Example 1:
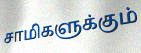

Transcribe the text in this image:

சாமிகளுக்கும்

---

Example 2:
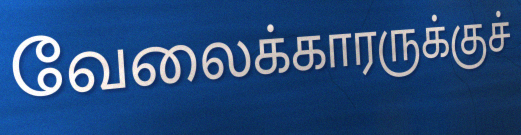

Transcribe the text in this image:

வேலைக்காரருக்குச்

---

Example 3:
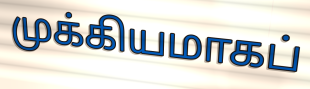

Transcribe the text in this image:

முக்கியமாகப்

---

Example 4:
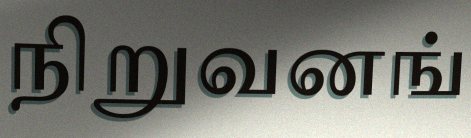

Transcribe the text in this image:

நிறுவனங்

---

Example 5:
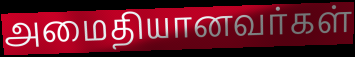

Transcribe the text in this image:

அமைதியானவர்கள்